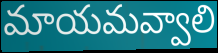
మాయమవ్వాలి